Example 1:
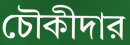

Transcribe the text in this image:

চৌকীদার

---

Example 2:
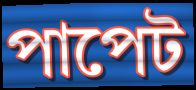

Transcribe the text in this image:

পাপেট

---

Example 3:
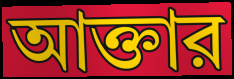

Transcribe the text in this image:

আক্তার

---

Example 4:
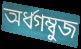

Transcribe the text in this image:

অর্ধগম্বুজ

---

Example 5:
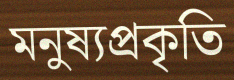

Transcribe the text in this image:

মনুষ্যপ্রকৃতি